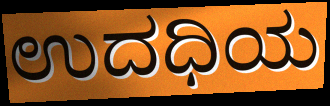
ಉದಧಿಯ